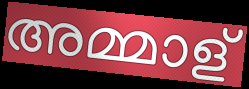
അമ്മാള്